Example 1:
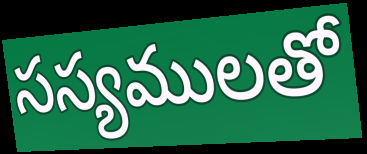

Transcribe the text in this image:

సస్యములతో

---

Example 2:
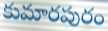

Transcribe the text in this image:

కుమారపురం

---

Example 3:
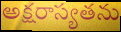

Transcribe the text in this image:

అక్షరాస్యతను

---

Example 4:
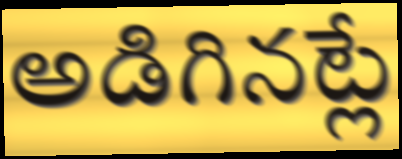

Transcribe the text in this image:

అడిగినట్లే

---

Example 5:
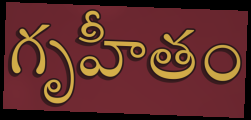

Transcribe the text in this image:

గృహీతం